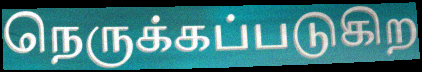
நெருக்கப்படுகிற